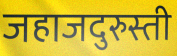
जहाजदुरुस्ती